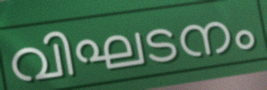
വിഘടനം